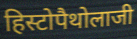
हिस्टोपैथोलाजी